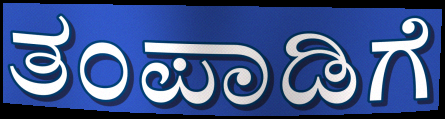
ತಂಪಾಡಿಗೆ